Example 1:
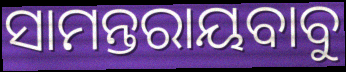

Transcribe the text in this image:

ସାମନ୍ତରାୟବାବୁ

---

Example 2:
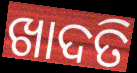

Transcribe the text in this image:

ଖାଦତି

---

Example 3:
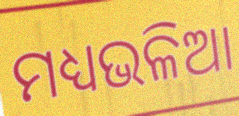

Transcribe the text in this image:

ମଧ୍ୟଭଳିଆ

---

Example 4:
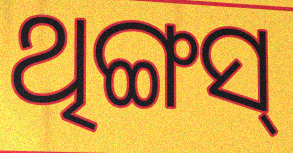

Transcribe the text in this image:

ଥିଙ୍ଗସ୍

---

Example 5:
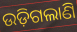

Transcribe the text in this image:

ଉଡ଼ିଗଲାଣି